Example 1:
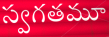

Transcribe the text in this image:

స్వగతమూ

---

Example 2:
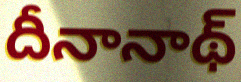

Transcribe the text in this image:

దీనానాథ్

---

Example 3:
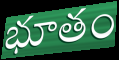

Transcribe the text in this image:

భూతం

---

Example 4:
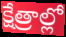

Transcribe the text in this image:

క్షేత్రాల్లో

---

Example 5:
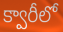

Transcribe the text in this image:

క్వారీలో